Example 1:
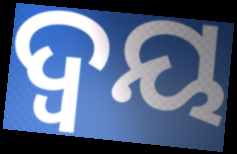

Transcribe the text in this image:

ଦ୍ୱୟ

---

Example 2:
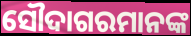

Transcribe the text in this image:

ସୌଦାଗରମାନଙ୍କ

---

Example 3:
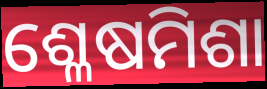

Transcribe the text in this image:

ଶ୍ଳେଷମିଶା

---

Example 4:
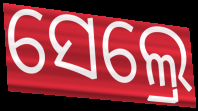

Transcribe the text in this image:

ସେଲ୍ରେ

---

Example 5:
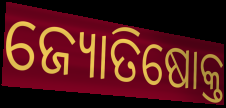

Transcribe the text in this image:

ଜ୍ୟୋତିଷୋକ୍ତ